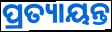
ପ୍ରତ୍ୟାୟନ୍ତ